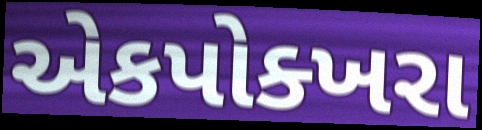
એકપોક્ખરા